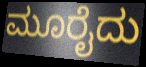
ಮೂರೈದು